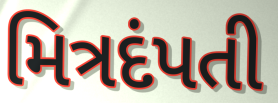
મિત્રદંપતી